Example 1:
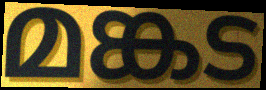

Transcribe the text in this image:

മങ്കട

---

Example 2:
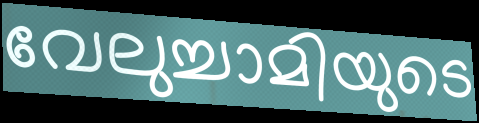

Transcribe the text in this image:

വേലുച്ചാമിയുടെ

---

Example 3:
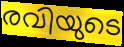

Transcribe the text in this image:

രവിയുടെ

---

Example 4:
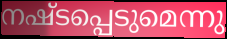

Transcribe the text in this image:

നഷ്ടപ്പെടുമെന്നു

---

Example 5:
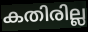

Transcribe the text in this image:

കതിരില്ല